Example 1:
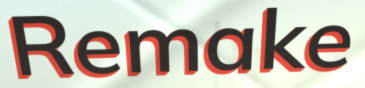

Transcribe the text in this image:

Remake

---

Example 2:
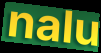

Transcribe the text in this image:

nalu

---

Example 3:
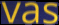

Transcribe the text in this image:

vas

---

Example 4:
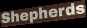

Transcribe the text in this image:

Shepherds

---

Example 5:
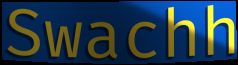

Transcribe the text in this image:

Swachh